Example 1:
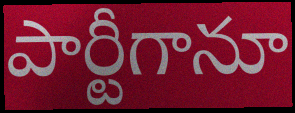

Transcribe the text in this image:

పార్టీగానూ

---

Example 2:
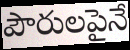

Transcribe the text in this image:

పౌరులపైనే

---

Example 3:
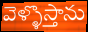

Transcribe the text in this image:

వెళ్ళొస్తాను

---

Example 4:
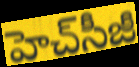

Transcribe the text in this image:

హెచ్‌సీజీ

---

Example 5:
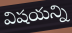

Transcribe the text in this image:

విషయన్ని